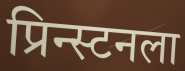
प्रिन्स्टनला